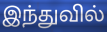
இந்துவில்